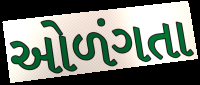
ઓળંગતા